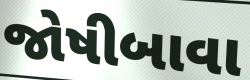
જોષીબાવા